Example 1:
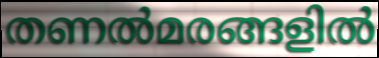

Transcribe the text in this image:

തണൽമരങ്ങളിൽ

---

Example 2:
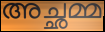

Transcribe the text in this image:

അച്ഛമ്മ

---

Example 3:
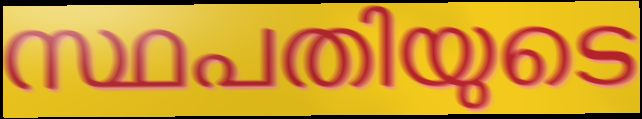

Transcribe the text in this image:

സ്ഥപതിയുടെ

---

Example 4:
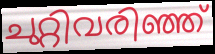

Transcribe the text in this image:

ചുറ്റിവരിഞ്ഞ്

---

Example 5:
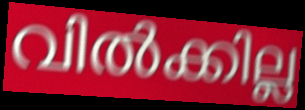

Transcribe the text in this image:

വിൽക്കില്ല